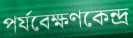
পর্যবেক্ষণকেন্দ্র